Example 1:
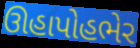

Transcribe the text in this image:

ઊહાપોહભેર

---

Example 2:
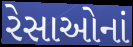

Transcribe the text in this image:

રેસાઓનાં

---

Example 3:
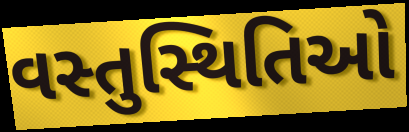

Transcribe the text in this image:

વસ્તુસ્થિતિઓ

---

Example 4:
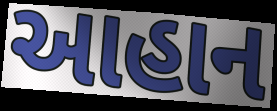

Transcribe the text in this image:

આહાન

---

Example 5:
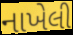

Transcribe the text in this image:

નાખેલી